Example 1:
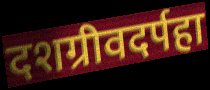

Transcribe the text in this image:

दशग्रीवदर्पहा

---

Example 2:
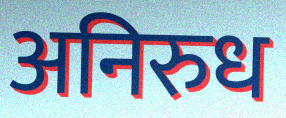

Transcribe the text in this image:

अनिरुध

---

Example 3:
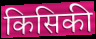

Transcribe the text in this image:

किसिकी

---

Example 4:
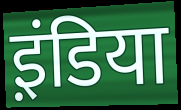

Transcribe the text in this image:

इ़ंडिया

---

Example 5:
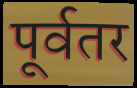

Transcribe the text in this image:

पूर्वतर